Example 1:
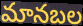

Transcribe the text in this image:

మానబల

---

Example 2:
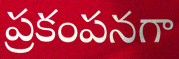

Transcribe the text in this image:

ప్రకంపనగా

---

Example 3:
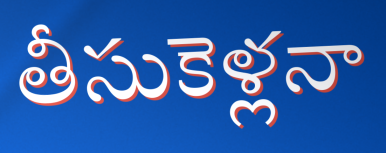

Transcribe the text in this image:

తీసుకెళ్లనా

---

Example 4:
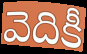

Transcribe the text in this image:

వెదికీ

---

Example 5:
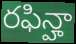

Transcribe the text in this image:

రఫిన్హా